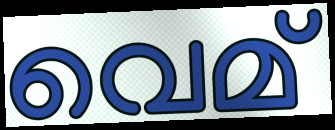
വെമ്